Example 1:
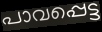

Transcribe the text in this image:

പാവപ്പെട്ട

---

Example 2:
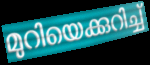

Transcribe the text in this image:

മുറിയെക്കുറിച്ച്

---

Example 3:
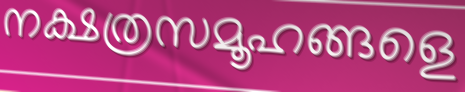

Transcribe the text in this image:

നക്ഷത്രസമൂഹങ്ങളെ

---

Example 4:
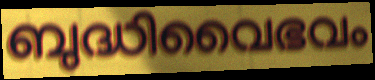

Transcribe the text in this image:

ബുദ്ധിവൈഭവം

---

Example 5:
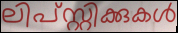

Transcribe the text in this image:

ലിപ്സ്റ്റിക്കുകൾ